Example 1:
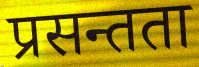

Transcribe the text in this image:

प्रसन्तता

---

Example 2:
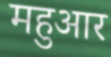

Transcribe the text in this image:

महुआर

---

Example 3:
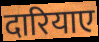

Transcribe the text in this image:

दारियाए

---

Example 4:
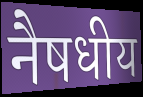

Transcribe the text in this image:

नैषधीय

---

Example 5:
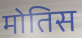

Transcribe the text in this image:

मोतिस